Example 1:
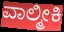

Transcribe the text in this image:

ವಾಲ್ಮೀಕಿ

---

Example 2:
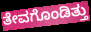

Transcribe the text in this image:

ತೇವಗೊಂಡಿತ್ತು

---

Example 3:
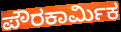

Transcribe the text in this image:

ಪೌರಕಾರ್ಮಿಕ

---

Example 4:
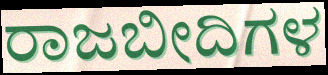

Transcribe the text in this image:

ರಾಜಬೀದಿಗಳ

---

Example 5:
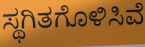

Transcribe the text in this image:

ಸ್ಥಗಿತಗೊಳಿಸಿವೆ